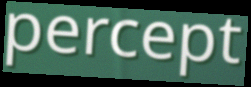
percept